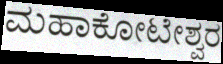
ಮಹಾಕೋಟೇಶ್ವರ